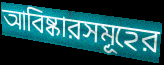
আবিষ্কারসমূহের